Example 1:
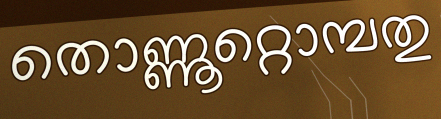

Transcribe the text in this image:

തൊണ്ണൂറ്റൊമ്പതു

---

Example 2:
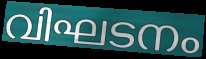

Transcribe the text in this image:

വിഘടനം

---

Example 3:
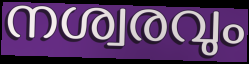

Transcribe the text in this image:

നശ്വരവും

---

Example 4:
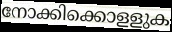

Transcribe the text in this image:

നോക്കിക്കൊളളുക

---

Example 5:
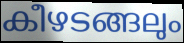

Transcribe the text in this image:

കീഴടങ്ങലും